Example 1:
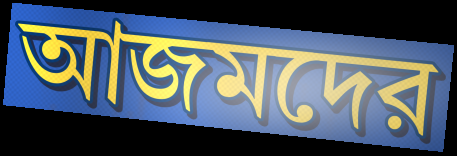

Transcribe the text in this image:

আজমদের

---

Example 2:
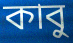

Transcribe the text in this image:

কাবু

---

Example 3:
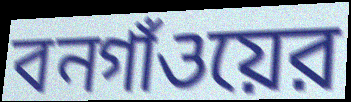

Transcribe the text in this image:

বনগাঁওয়ের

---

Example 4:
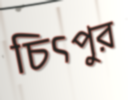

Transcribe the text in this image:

চিৎপুর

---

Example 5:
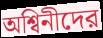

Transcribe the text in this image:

অশ্বিনীদের